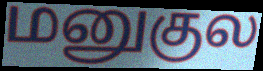
மனுகுல